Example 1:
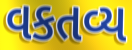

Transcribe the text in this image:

વકતવ્ય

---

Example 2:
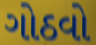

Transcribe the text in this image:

ગોઠવો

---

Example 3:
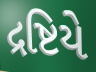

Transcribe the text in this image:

દ્રષ્ટિયે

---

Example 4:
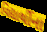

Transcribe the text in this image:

વિદ્યાર્થીના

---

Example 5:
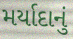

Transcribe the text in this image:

મર્યાદાનું